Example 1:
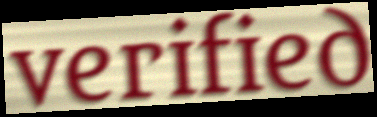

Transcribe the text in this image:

verified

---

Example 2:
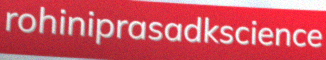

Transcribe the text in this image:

rohiniprasadkscience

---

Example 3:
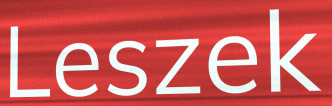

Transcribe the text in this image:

Leszek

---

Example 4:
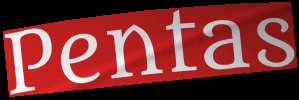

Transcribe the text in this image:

Pentas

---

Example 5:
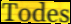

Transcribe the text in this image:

Todes